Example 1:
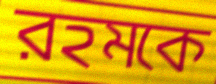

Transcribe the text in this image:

রহমকে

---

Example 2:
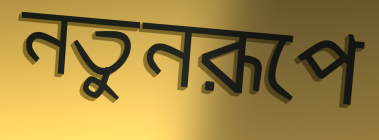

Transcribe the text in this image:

নতুনরূপে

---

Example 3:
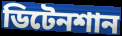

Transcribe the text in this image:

ডিটেনশান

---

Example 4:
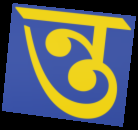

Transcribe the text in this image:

ন্ত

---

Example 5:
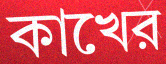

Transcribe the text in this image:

কাখের